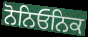
ਨੋਨਿਓਨਿਕ